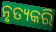
ନୃତ୍ୟକରି